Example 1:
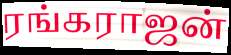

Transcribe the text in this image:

ரங்கராஜன்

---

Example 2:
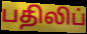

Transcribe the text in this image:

பதிலிப்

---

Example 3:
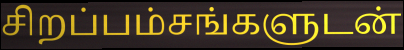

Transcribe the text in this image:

சிறப்பம்சங்களுடன்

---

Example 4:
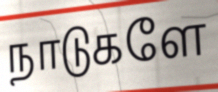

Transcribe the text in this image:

நாடுகளே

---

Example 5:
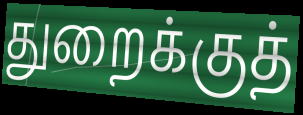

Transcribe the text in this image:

துறைக்குத்